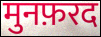
मुनफ़रद